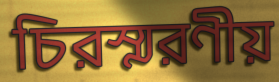
চিরস্মরণীয়